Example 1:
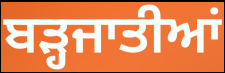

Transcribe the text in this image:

ਬੜ੍ਹਜਾਤੀਆਂ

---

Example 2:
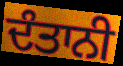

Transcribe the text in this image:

ਦੰਤਾਨੀ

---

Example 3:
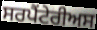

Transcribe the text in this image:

ਸਰਪੈਂਟੇਰੀਅਸ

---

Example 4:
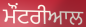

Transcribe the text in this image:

ਮੌਂਟਰੀਆਲ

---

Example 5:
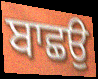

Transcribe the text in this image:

ਬਾਛਉ